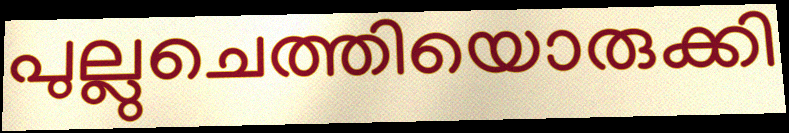
പുല്ലുചെത്തിയൊരുക്കി